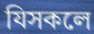
যিসকলে